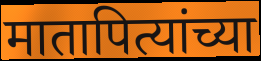
मातापित्यांच्या